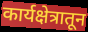
कार्यक्षेत्रातून